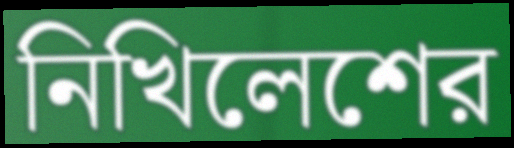
নিখিলেশের